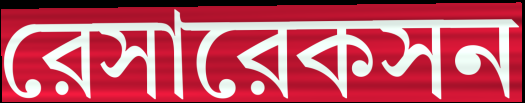
রেসারেকসন